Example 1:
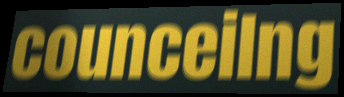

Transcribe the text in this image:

counceilng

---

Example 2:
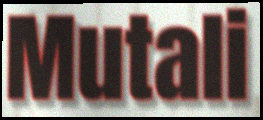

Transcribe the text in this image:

Mutali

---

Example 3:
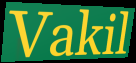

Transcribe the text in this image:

Vakil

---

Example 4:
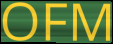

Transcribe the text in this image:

OFM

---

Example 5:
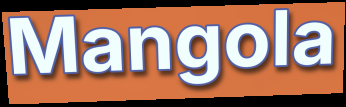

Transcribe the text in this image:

Mangola